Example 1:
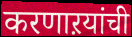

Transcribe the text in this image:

करणाऱयांची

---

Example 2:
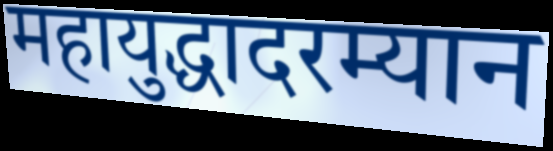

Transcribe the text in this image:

महायुद्धादरम्यान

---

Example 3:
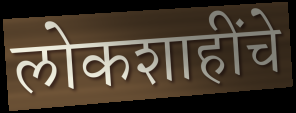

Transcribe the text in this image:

लोकशाहींचे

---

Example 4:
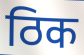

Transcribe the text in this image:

ठिक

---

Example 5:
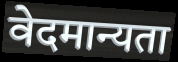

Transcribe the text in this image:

वेदमान्यता